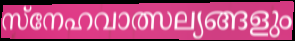
സ്നേഹവാത്സല്യങ്ങളും